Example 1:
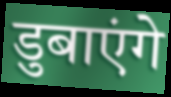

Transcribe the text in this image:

डुबाएंगे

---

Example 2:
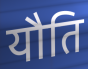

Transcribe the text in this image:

यौति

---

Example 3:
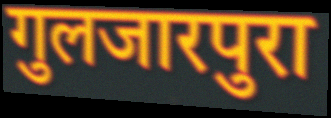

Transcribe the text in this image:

गुलजारपुरा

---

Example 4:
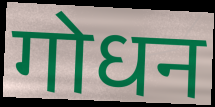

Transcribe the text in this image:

गोधन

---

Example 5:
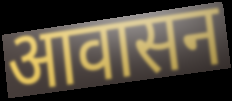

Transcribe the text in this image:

आवासन